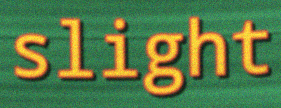
slight